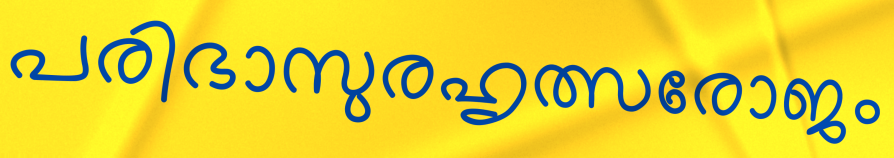
പരിഭാസുരഹൃത്സരോജം